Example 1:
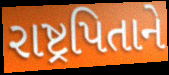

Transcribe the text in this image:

રાષ્ટ્રપિતાને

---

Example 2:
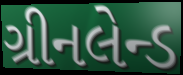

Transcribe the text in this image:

ગ્રીનલેન્ડ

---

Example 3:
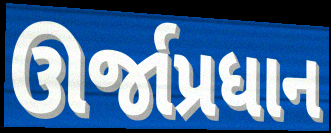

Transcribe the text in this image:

ઊર્જાપ્રધાન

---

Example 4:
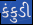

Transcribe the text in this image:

કંકુડી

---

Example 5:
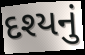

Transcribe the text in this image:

દશ્યનું